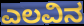
ಎಲವಿನ